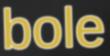
bole